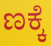
ಣಕ್ಕೆ